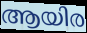
ആയിര